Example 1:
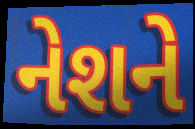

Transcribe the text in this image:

નેશને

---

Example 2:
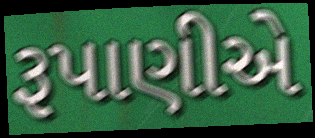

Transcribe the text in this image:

રૂપાણીએ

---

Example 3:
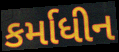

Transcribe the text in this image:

કર્માધીન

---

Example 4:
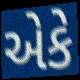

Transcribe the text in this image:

એકે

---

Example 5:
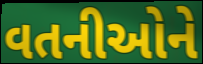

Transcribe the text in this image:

વતનીઓને